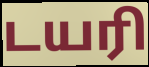
டயரி